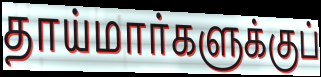
தாய்மார்களுக்குப்